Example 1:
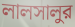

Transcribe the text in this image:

লালসালুর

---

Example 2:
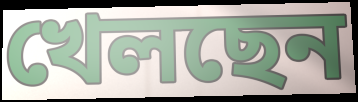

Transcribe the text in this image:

খেলছেন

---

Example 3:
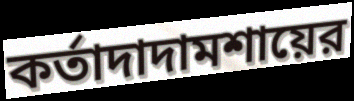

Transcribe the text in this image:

কর্তাদাদামশায়ের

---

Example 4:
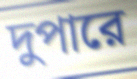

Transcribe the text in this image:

দুপারে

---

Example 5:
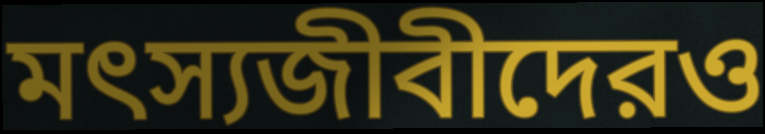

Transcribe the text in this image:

মৎস্যজীবীদেরও